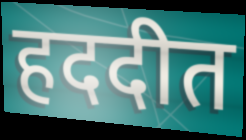
हददीत